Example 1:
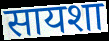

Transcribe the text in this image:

सायशा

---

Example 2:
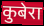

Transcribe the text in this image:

कुबेरा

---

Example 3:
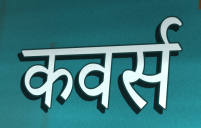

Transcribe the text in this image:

कवर्स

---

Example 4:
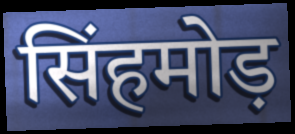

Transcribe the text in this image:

सिंहमोड़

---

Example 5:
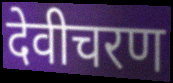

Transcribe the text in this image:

देवीचरण